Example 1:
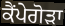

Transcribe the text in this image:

ਕੈਂਪੇਗੋੜਾ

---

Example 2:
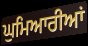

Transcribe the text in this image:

ਘੁਮਿਆਰੀਆਂ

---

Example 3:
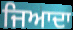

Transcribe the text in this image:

ਜਿਆਦਾ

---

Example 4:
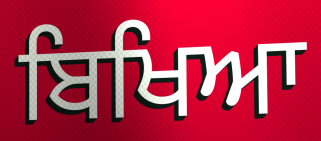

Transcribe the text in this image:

ਬਿਖਿਆ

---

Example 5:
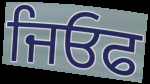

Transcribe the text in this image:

ਜਿਓਫ